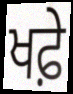
ਖਫ਼ੇ